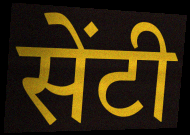
सेंटी